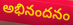
అభినందనం